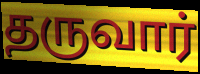
தருவார்